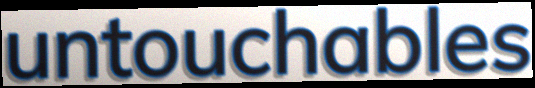
untouchables